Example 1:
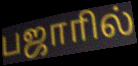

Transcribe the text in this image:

பஜாரில்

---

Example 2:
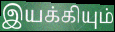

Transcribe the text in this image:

இயக்கியும்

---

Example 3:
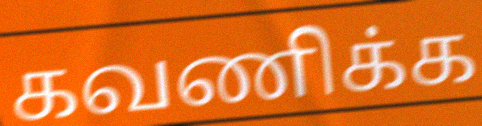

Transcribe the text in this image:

கவணிக்க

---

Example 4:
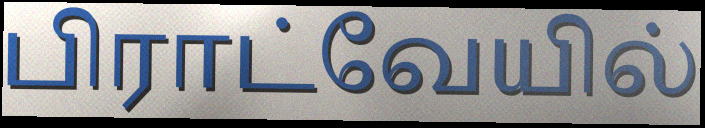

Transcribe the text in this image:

பிராட்வேயில்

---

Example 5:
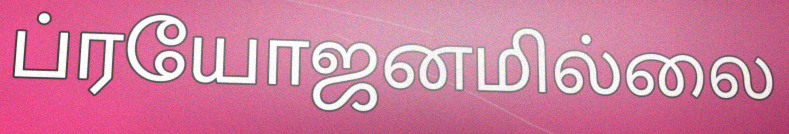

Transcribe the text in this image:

ப்ரயோஜனமில்லை